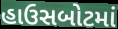
હાઉસબોટમાં